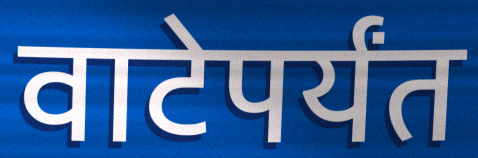
वाटेपर्यंत